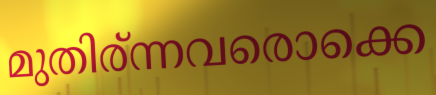
മുതിര്ന്നവരൊക്കെ